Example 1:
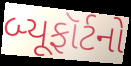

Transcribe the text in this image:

બ્યૂફૉર્ટનો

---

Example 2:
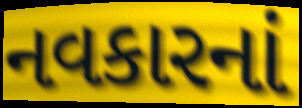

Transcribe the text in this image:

નવકારનાં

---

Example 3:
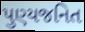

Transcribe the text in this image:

પુણ્યજનિત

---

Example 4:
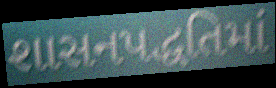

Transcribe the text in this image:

શાસનપદ્ધતિમાં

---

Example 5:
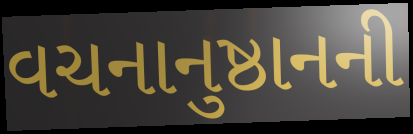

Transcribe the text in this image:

વચનાનુષ્ઠાનની